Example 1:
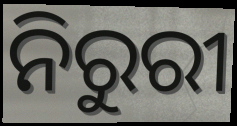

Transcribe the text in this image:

ନିରୁରୀ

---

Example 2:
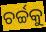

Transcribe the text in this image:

ଚର୍ଚ୍ଚକୁ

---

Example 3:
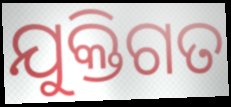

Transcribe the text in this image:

ଯୁକ୍ତିଗତ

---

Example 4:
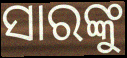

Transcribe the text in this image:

ସାରଙ୍କୁ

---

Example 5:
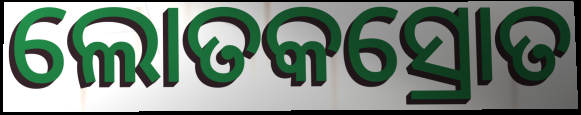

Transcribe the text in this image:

ଲୋତକସ୍ରୋତ